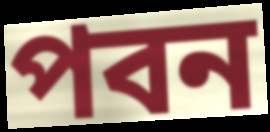
পবন